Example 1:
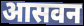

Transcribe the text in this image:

आसवन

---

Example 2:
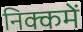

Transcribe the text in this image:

निक्कमें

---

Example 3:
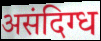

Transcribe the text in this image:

असंदिग्ध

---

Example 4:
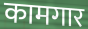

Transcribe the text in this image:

कामगार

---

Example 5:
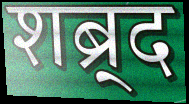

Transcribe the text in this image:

शब्र्द